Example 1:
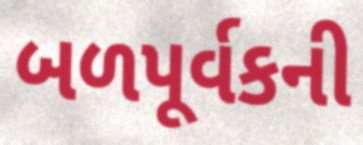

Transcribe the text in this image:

બળપૂર્વકની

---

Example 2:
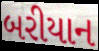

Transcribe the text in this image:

બરીયાન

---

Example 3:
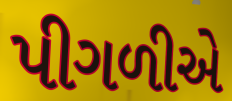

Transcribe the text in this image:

પીગળીએ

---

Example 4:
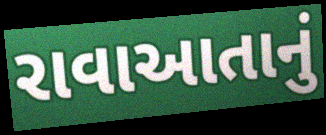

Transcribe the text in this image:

રાવાઆતાનું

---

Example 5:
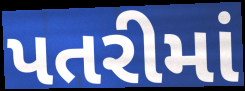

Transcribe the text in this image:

પતરીમાં